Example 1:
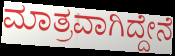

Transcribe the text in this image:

ಮಾತ್ರವಾಗಿದ್ದೇನೆ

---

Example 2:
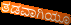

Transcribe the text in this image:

ತಡವಾಗಿಯೂ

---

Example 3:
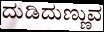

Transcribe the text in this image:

ದುಡಿದುಣ್ಣುವ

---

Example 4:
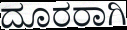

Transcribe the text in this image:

ದೂರರಾಗಿ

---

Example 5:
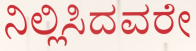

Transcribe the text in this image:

ನಿಲ್ಲಿಸಿದವರೇ